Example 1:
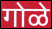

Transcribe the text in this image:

गोळे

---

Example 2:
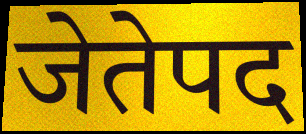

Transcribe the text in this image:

जेतेपद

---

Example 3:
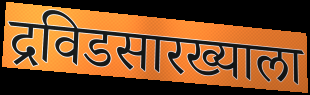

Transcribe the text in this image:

द्रविडसारख्याला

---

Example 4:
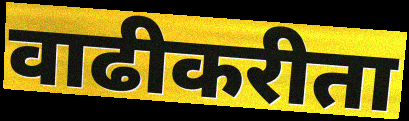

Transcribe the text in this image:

वाढीकरीता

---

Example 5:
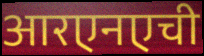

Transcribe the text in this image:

आरएनएची